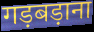
गड़बड़ाना